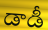
డాడీ